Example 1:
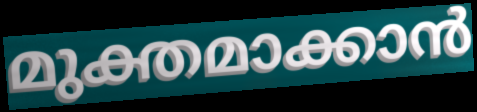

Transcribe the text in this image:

മുക്തമാക്കാൻ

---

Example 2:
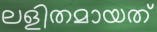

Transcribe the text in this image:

ലളിതമായത്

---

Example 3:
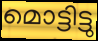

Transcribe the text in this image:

മൊട്ടിട്ടു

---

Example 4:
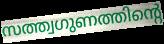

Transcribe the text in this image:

സത്ത്വഗുണത്തിന്റെ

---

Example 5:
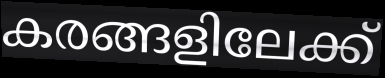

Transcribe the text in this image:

കരങ്ങളിലേക്ക്